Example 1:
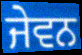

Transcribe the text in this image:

ਜੇਵਨ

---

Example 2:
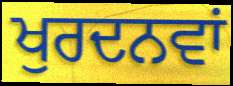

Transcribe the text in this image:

ਖੁਰਦਨਵਾਂ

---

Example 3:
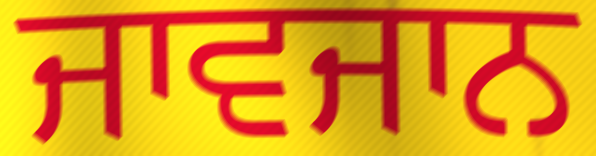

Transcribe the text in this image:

ਜਾਵਜਾਨ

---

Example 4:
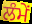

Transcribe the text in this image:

ਲੰਮੇਂ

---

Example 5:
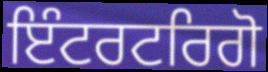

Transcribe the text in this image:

ਇੰਟਰਟਰਿਗੋ